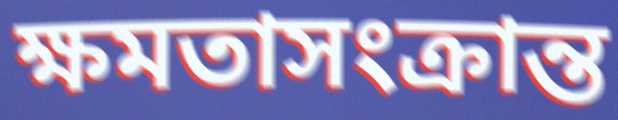
ক্ষমতাসংক্রান্ত